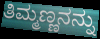
ತಿಮ್ಮಣ್ಣನನ್ನು